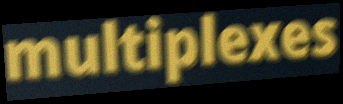
multiplexes